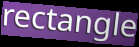
rectangle